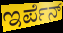
ಇರ್ಪೆನ್